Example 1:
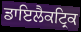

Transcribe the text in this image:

ਡਾਇਲੈਕਟ੍ਰਿਕ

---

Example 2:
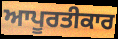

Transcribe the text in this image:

ਆਪੂਰਤੀਕਾਰ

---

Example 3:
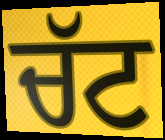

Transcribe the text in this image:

ਚੱਟ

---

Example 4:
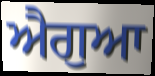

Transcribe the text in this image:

ਐਗੁਆ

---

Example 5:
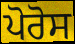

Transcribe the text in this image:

ਪੋਰੋਸ